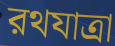
রথযাত্রা